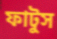
ফাটুস